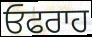
ਓਫਰਾਹ